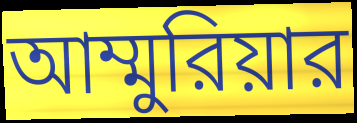
আম্মুরিয়ার